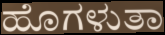
ಹೊಗಳುತಾ